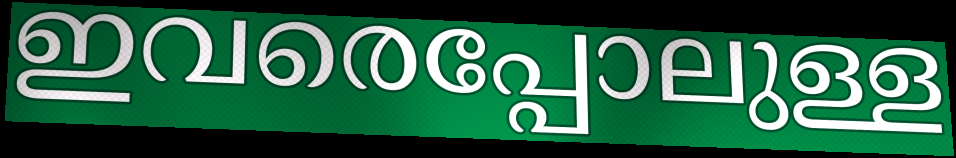
ഇവരെപ്പോലുള്ള